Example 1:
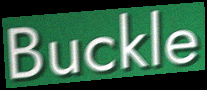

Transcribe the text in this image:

Buckle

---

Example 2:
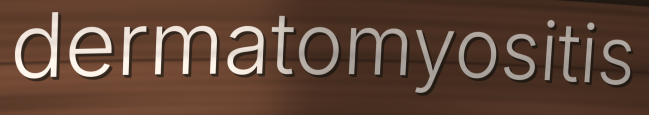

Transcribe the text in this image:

dermatomyositis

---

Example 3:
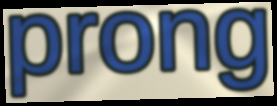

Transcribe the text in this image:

prong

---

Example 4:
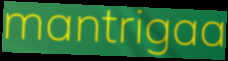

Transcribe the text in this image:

mantrigaa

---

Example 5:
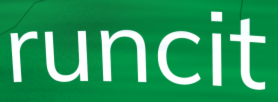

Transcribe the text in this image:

runcit